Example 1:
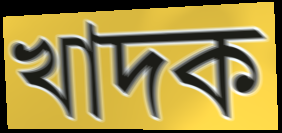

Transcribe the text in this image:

খাদক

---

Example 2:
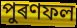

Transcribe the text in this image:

পুৰণফল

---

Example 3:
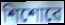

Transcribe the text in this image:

শিশোৱে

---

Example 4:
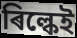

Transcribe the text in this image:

ৰিল্কেই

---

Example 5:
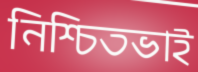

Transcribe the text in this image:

নিশ্চিতভাই